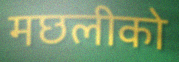
मछलीको